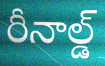
రీనాల్డ్